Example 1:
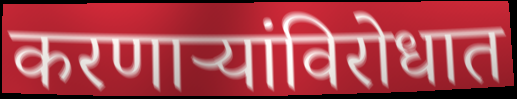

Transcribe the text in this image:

करणाऱ्यांविरोधात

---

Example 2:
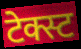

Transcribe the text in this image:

टेक्स्ट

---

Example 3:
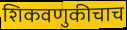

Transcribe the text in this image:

शिकवणुकीचाच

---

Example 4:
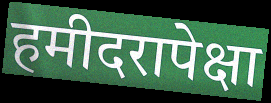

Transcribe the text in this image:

हमीदरापेक्षा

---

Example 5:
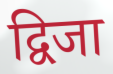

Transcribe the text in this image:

द्विजा